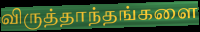
விருத்தாந்தங்களை